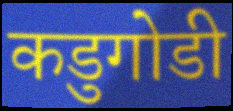
कडुगोडी